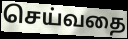
செய்வதை